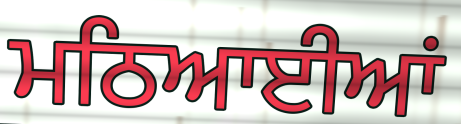
ਮਠਿਆਈਆਂ